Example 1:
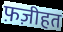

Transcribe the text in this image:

फ़ज़ीहत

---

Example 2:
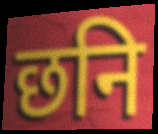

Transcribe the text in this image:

छनि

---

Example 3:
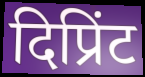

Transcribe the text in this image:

दिप्रिंट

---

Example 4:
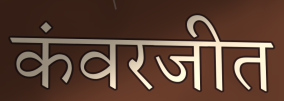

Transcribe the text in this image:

कंवरजीत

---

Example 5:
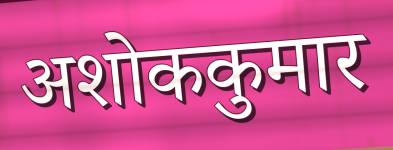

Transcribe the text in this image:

अशोककुमार